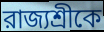
রাজ্যশ্রীকে